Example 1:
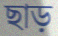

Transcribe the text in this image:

ছাড়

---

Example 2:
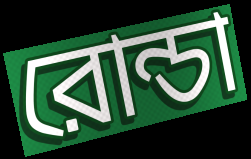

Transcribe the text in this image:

রোন্ডা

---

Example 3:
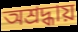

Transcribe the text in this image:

অশ্রদ্ধায়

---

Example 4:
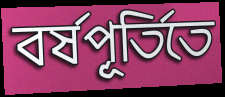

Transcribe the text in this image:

বর্ষপূর্তিতে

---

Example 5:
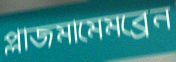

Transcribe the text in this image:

প্লাজমামেমব্রেন